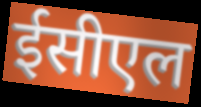
ईसीएल